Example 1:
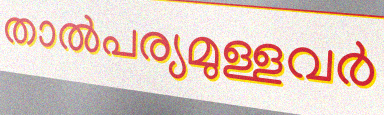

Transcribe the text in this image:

താൽപര്യമുള്ളവർ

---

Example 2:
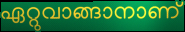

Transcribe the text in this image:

ഏറ്റുവാങ്ങാനാണ്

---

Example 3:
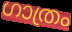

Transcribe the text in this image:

ഗാത്രം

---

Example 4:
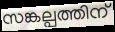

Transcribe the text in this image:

സങ്കല്പത്തിന്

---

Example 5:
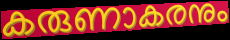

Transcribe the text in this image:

കരുണാകരനും